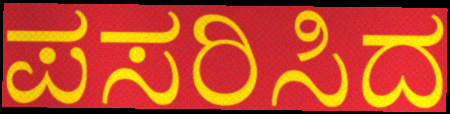
ಪಸರಿಸಿದ